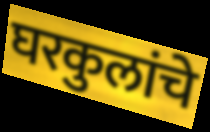
घरकुलांचे